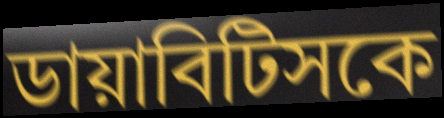
ডায়াবিটিসকে